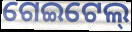
ଗେଇଟେଲ୍